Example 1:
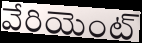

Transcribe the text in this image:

వేరియెంట్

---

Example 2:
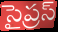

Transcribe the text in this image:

సైప్రస్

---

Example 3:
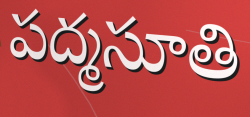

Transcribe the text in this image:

పద్మసూతి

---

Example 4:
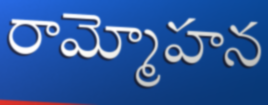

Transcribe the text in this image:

రామ్మోహన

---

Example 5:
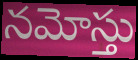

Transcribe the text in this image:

నమోస్తు